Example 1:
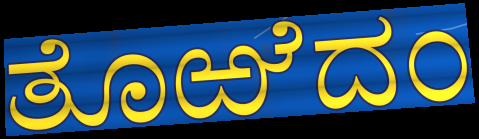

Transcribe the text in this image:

ತೊಱೆದಂ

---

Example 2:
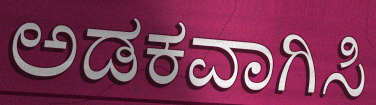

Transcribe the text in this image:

ಅಡಕವಾಗಿಸಿ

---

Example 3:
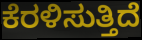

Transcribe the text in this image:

ಕೆರಳಿಸುತ್ತಿದೆ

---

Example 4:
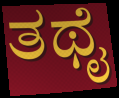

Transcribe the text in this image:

ತಥೈ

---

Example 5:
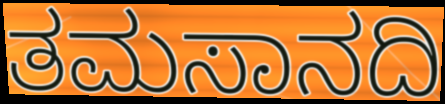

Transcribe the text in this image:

ತಮಸಾನದಿ